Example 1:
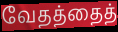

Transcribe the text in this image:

வேதத்தைத்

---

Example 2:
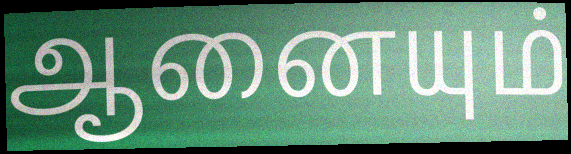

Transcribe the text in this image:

ஆனையும்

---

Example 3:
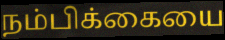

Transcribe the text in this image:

நம்பிக்கையை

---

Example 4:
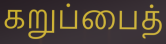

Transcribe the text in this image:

கறுப்பைத்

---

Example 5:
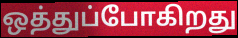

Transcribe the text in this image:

ஒத்துப்போகிறது